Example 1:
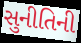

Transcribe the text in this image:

સુનીતિની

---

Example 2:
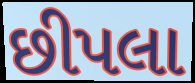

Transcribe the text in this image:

છીપલા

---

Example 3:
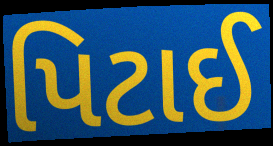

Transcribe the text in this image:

પિટાઈ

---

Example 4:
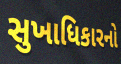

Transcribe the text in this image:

સુખાધિકારનો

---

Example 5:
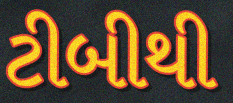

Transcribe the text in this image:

ટીબીથી